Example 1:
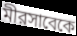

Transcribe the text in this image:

মীরসাবেকে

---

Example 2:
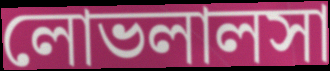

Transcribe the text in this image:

লোভলালসা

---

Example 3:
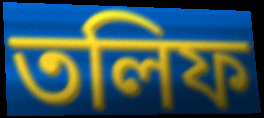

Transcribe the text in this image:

তলিফ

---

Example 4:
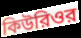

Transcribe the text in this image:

কিউরিওর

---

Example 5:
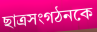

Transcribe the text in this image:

ছাত্রসংগঠনকে